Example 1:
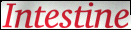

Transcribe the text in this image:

Intestine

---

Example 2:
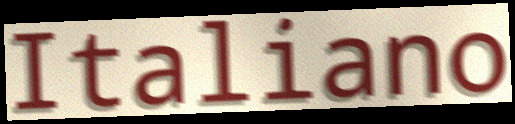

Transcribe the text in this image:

Italiano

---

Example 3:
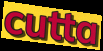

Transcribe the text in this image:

cutta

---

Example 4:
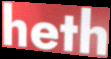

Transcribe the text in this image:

heth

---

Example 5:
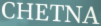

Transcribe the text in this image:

CHETNA